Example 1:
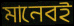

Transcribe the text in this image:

মানেবই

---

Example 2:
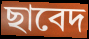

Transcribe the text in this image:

ছাবেদ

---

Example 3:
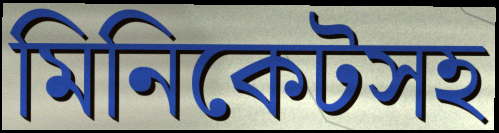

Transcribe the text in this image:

মিনিকেটসহ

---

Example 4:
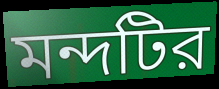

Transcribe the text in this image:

মন্দটির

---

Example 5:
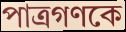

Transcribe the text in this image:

পাত্রগণকে